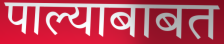
पाल्याबाबत